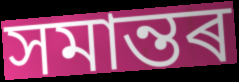
সমান্তৰ